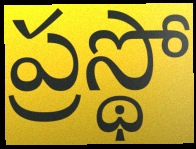
ప్రస్థో